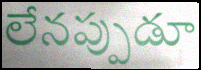
లేనప్పుడూ